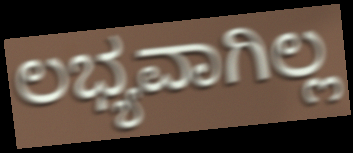
ಲಭ್ಯವಾಗಿಲ್ಲ